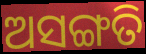
ଅସଙ୍ଗତି